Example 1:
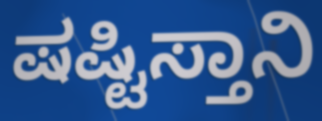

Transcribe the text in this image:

ಷಷ್ಟಿಸ್ತಾನಿ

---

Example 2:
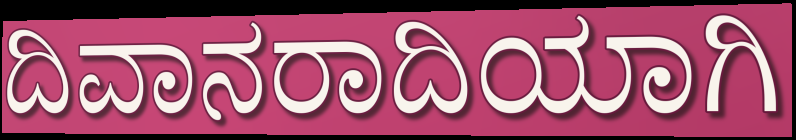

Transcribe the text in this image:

ದಿವಾನರಾದಿಯಾಗಿ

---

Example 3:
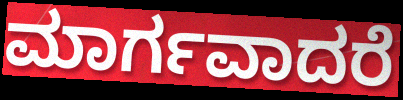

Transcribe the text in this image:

ಮಾರ್ಗವಾದರೆ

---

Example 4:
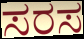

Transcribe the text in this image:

ಸರಸ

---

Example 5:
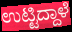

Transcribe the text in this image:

ಉಟ್ಟಿದ್ದಾಳೆ